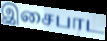
இசைபாட